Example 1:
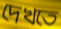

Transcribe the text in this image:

দেখতে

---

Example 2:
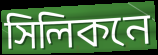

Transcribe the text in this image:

সিলিকনে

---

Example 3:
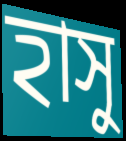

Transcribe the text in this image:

হাসু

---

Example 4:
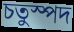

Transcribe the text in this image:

চতুস্পদ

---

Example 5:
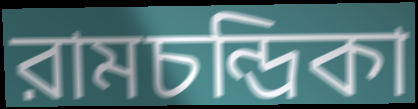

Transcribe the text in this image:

রামচন্দ্রিকা